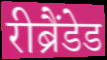
रीब्रैंडेड